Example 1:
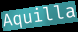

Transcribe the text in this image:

Aquilla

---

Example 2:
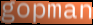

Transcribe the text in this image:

gopman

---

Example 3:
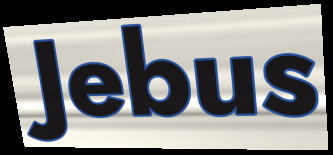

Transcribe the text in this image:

Jebus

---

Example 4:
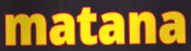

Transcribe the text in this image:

matana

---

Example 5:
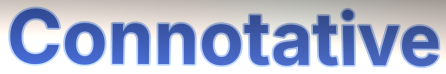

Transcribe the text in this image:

Connotative